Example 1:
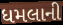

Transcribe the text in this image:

ધમલાની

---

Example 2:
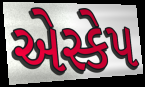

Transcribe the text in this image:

એસ્કેપ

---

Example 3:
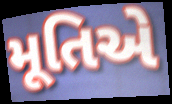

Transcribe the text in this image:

મૂતિએ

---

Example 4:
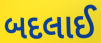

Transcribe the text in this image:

બદલાઈ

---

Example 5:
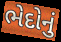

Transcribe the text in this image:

ભેદોનું